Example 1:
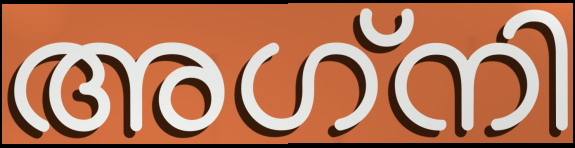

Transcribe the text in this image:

അഗ്‌നി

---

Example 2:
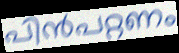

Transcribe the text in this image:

പിൻപറ്റണം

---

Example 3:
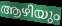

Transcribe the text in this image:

ആഴിയും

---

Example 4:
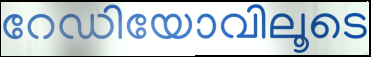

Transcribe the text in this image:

റേഡിയോവിലൂടെ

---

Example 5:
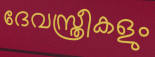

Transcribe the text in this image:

ദേവസ്ത്രീകളും